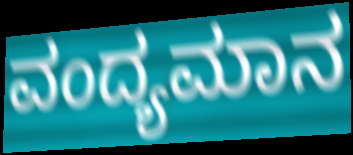
ವಂದ್ಯಮಾನ